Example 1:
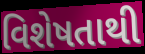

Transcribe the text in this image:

વિશેષતાથી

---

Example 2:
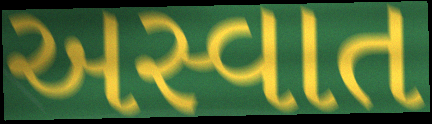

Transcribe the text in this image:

અસ્વાત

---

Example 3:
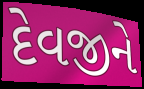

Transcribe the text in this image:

દેવજીને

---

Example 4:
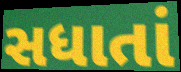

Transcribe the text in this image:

સધાતાં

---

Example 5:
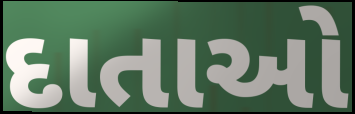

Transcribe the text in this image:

દાતાઓ